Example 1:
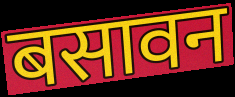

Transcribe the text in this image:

बसावन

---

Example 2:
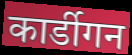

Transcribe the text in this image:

कार्डीगन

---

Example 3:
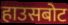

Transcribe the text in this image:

हाउसबोट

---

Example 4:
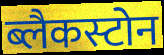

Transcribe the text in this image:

ब्‍लैकस्‍टोन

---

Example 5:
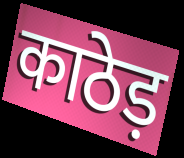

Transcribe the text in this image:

काठेड़